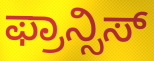
ಫ್ರಾನ್ಸಿಸ್